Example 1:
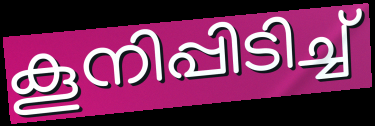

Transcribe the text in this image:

കൂനിപ്പിടിച്ച്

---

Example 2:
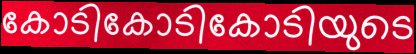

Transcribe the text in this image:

കോടികോടികോടിയുടെ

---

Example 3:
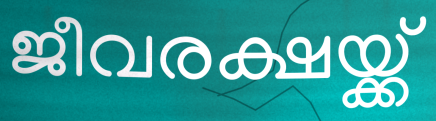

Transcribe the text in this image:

ജീവരക്ഷയ്ക്ക്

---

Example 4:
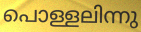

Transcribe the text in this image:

പൊള്ളലിന്നു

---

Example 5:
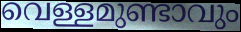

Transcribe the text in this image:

വെള്ളമുണ്ടാവും